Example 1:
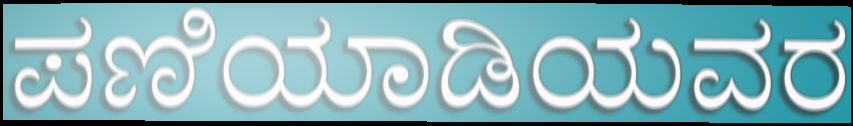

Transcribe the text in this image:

ಪಣಿಯಾಡಿಯವರ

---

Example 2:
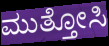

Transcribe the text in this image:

ಮುತ್ತೋಸಿ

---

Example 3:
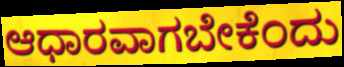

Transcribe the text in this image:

ಆಧಾರವಾಗಬೇಕೆಂದು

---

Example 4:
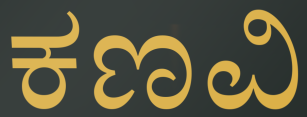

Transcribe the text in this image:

ಕಣವಿ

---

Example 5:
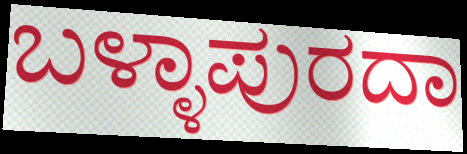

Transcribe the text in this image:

ಬಳ್ಳಾಪುರದಾ